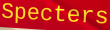
Specters